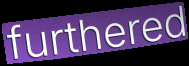
furthered